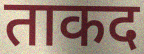
ताकद